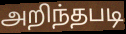
அறிந்தபடி